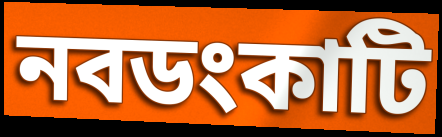
নবডংকাটি